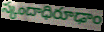
స్కందాధిరూఢాం